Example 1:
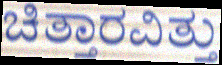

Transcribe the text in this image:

ಚಿತ್ತಾರವಿತ್ತು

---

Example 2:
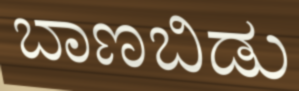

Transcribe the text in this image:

ಬಾಣಬಿಡು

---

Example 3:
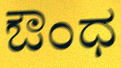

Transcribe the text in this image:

ಔಂಧ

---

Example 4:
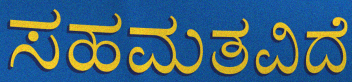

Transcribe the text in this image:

ಸಹಮತವಿದೆ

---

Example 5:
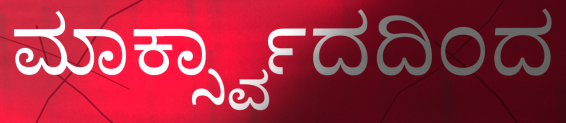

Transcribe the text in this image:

ಮಾರ್ಕ್ಸ್ವಾದದಿಂದ